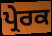
ਪ੍ਰੇਰਕ